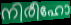
നിരീഹോ